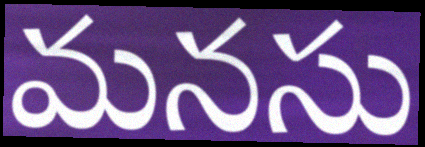
మనసు